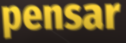
pensar